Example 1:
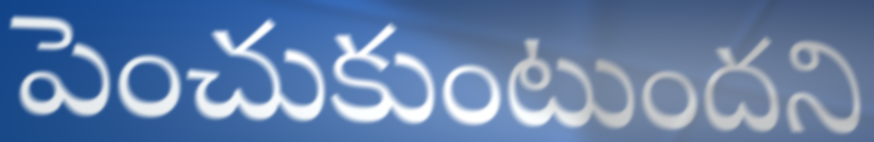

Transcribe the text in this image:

పెంచుకుంటుందని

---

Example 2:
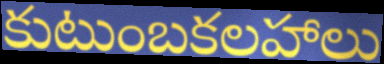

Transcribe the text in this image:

కుటుంబకలహాలు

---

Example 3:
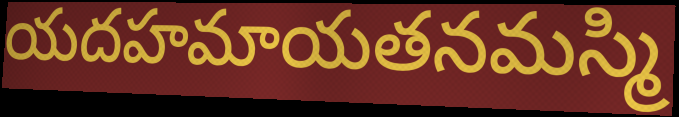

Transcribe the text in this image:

యదహమాయతనమస్మి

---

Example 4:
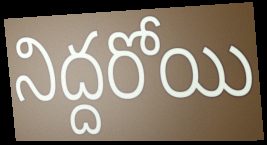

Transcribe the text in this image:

నిద్దరోయి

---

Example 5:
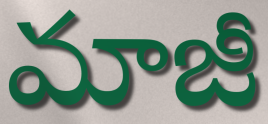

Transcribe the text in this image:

మాజీ